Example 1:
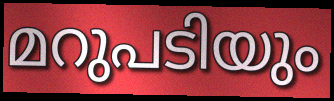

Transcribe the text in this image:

മറുപടിയും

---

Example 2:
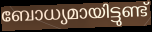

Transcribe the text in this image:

ബോധ്യമായിട്ടുണ്ട്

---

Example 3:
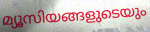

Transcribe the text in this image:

മ്യൂസിയങ്ങളുടെയും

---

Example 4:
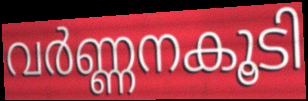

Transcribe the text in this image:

വർണ്ണനകൂടി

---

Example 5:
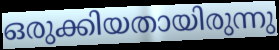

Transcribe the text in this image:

ഒരുക്കിയതായിരുന്നു